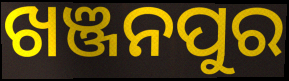
ଖଞ୍ଜନପୁର